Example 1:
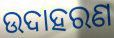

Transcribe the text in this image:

ଉଦାହରଣ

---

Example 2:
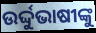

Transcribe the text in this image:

ଉର୍ଦ୍ଦୁଭାଷୀଙ୍କୁ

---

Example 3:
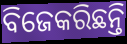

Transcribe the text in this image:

ବିଜେକରିଛନ୍ତି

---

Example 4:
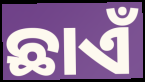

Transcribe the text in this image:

ଛାଏଁ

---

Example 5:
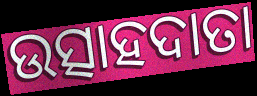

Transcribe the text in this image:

ଉତ୍ସାହଦାତା